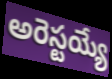
అరెస్టయ్యే